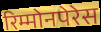
रिम्मोनपेरेस